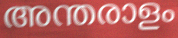
അന്തരാളം